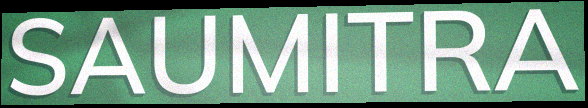
SAUMITRA